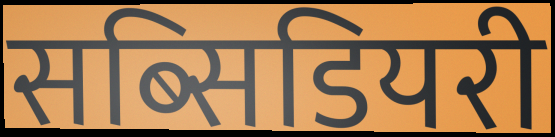
सब्सिडियरी